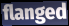
flanged